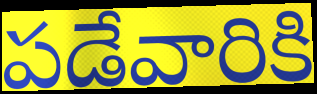
పడేవారికి